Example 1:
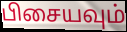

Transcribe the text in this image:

பிசையவும்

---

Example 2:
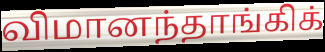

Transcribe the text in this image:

விமானந்தாங்கிக்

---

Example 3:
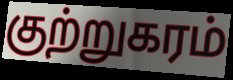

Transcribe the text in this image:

குற்றுகரம்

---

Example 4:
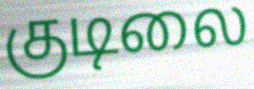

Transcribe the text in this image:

குடிலை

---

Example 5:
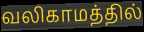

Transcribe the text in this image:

வலிகாமத்தில்